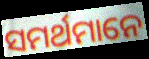
ସମର୍ଥମାନେ